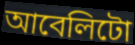
আবেলিটো